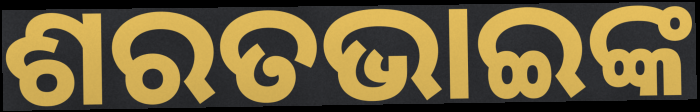
ଶରତଭାଇଙ୍କ